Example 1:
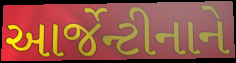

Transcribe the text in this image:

આર્જેન્ટીનાને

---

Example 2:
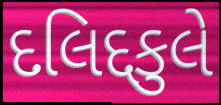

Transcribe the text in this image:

દલિદ્દકુલે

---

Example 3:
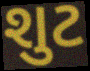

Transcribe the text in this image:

શુટ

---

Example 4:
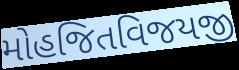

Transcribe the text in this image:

મોહજિતવિજયજી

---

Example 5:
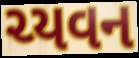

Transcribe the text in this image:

ચ્યવન